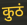
कुठं